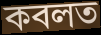
কবলত